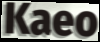
Kaeo